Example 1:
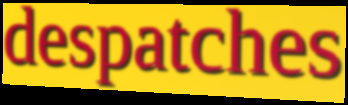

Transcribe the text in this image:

despatches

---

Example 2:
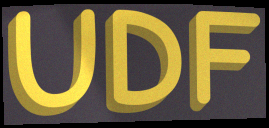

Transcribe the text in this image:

UDF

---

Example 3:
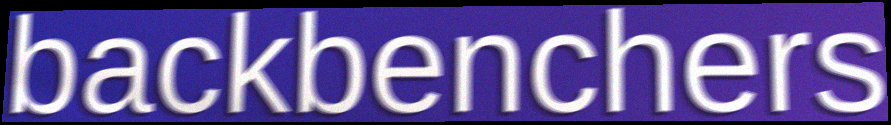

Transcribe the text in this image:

backbenchers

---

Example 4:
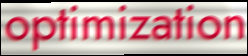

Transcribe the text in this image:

optimization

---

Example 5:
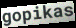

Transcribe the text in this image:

gopikas